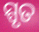
ସ୍ପୃତ